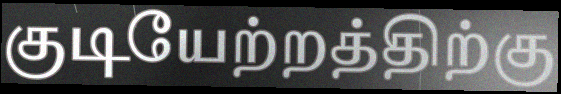
குடியேற்றத்திற்கு